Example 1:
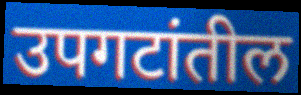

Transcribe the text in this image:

उपगटांतील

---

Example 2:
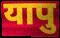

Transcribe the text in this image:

यापु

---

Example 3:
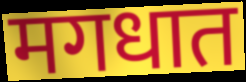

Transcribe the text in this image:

मगधात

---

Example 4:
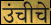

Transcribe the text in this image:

उंचीचे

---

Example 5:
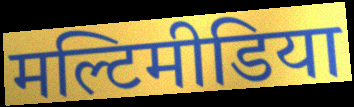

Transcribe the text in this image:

मल्टिमीडिया